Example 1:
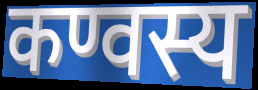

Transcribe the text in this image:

कण्वस्य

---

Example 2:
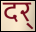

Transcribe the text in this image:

दर्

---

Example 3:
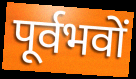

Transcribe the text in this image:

पूर्वभवों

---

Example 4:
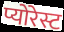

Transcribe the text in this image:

प्योरेस्ट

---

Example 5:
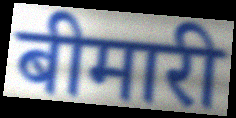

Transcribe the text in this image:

बीमारी